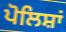
ਪੋਲਿਸ਼ਾਂ